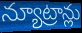
న్యూట్రాన్లు